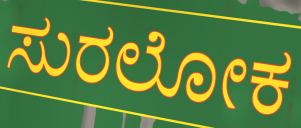
ಸುರಲೋಕ